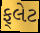
ફ્‌લેટ